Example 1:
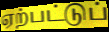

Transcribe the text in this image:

ஏற்பட்டுப்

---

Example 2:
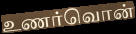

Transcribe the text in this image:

உணர்வொன்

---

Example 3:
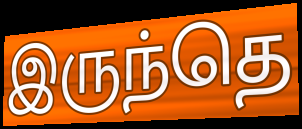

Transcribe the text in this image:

இருந்தெ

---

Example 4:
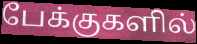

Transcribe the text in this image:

பேக்குகளில்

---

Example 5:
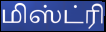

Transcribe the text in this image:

மிஸ்ட்ரி